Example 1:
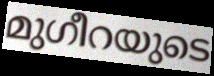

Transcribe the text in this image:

മുഗീറയുടെ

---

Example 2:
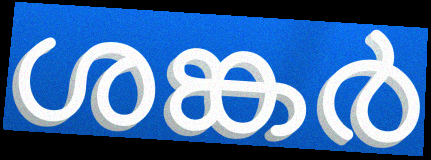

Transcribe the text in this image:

ശങ്കർ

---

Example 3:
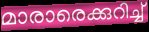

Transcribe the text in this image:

മാരാരെക്കുറിച്ച്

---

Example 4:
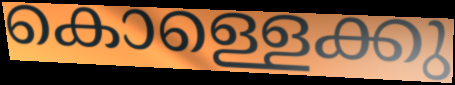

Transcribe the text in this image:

കൊള്ളെക്കു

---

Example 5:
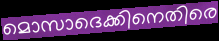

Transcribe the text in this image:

മൊസാദെക്കിനെതിരെ